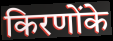
किरणोंके